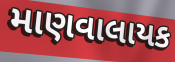
માણવાલાયક